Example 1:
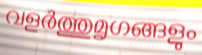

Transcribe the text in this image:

വളർത്തുമൃഗങ്ങളും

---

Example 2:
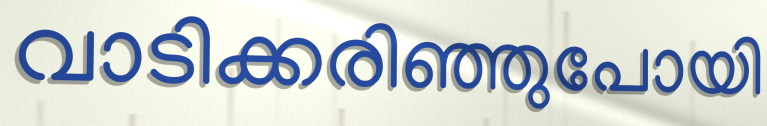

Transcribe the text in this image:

വാടിക്കരിഞ്ഞുപോയി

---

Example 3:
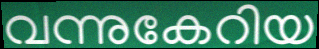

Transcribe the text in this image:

വന്നുകേറിയ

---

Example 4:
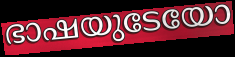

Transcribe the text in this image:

ഭാഷയുടേയോ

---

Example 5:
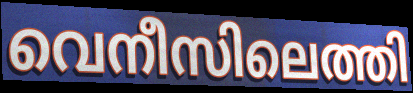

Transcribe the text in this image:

വെനീസിലെത്തി